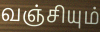
வஞ்சியும்